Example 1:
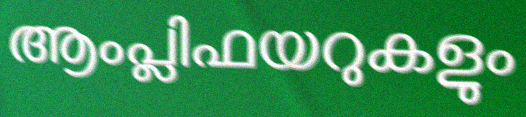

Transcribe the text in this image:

ആംപ്ലിഫയറുകളും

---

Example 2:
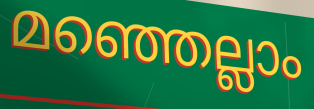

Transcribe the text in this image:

മഞ്ഞെല്ലാം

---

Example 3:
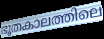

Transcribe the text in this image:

ഭൂതകാലത്തിലെ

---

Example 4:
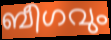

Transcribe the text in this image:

ബീഗവും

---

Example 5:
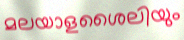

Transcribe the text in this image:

മലയാളശൈലിയും